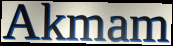
Akmam